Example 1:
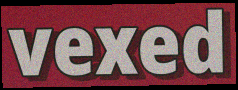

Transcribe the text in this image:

vexed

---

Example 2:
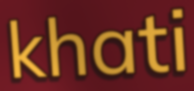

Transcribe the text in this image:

khati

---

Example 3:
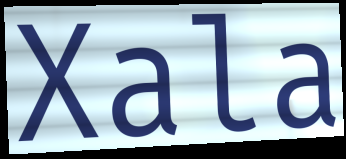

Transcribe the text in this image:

Xala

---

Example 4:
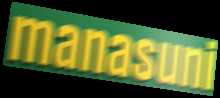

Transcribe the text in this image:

manasuni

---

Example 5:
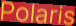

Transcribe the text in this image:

Polaris